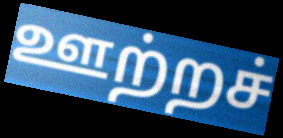
ஊற்றச்